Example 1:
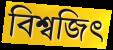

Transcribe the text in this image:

বিশ্বজিৎ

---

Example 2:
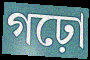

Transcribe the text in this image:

গঢ়ো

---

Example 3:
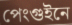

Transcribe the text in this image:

পেংগুইনে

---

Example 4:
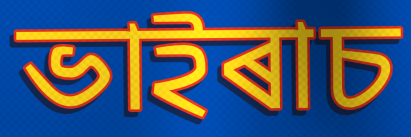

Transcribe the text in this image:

ভাইৰাচ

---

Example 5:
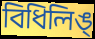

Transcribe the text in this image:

বিধিলিঙ্